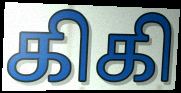
கிகி